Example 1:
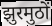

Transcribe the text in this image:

झुरमुठों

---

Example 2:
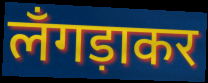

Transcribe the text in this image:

लँगड़ाकर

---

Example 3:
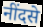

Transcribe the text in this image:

नींदसे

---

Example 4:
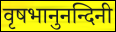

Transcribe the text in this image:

वृषभानुनन्दिनी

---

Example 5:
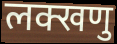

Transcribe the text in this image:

लक्खणु